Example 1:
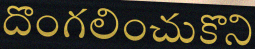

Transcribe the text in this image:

దొంగలించుకొని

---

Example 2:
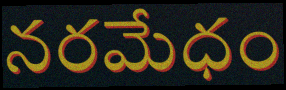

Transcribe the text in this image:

నరమేధం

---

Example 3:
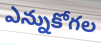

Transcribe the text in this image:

ఎన్నుకోగల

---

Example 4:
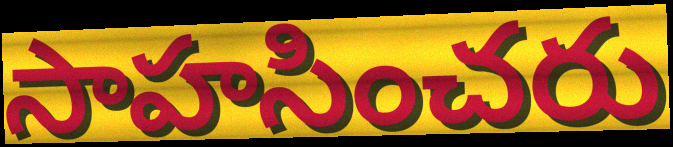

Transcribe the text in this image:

సాహసించరు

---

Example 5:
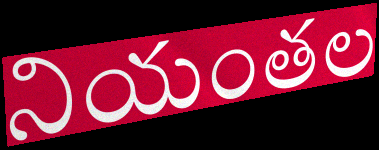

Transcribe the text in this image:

నియంతల